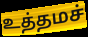
உத்தமச்